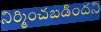
నిర్మించబడిందని